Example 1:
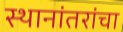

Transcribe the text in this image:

स्थानांतरांचा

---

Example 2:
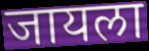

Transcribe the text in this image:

जायला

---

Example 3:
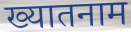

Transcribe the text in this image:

ख्यातनाम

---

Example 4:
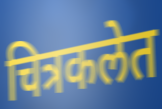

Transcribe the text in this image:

चित्रकलेत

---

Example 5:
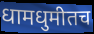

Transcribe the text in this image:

धामधुमीतच